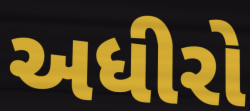
અધીરો